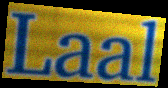
Laal